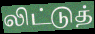
லிட்டுத்